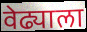
वेढ्याला